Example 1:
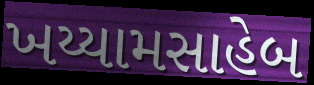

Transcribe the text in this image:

ખય્યામસાહેબ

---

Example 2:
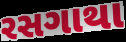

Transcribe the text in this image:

રસગાથા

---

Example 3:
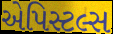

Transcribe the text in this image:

એપિસ્ટલ્સ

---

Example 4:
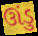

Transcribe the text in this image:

ઊંડુ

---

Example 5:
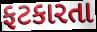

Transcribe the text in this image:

ફટકારતા